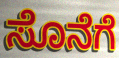
ಸೊನೆಗೆ